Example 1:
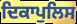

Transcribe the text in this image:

ਦਿਕਾਪੁਲਿਸ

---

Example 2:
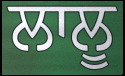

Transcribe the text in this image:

ਲਾਲੂ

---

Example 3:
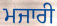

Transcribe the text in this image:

ਮਜਾਰੀ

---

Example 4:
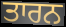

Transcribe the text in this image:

ਤਾਰਨ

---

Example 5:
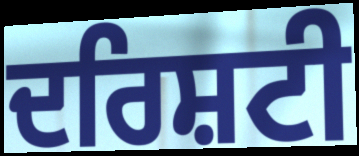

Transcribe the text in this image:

ਦਰਿਸ਼ਟੀ